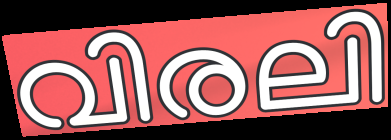
വിരലി